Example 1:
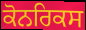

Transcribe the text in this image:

ਕੋਨਰਿਕਸ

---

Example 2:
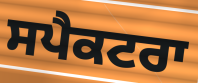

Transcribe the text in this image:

ਸਪੈਕਟਰਾ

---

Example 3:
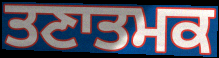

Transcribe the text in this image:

ਤਣਾਤਮਕ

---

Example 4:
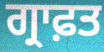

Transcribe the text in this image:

ਗ੍ਰਾਫ਼ਤ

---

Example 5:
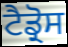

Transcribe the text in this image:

ਟੈਡ੍ਰੋਸ